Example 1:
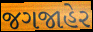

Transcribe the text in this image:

જગજાહેર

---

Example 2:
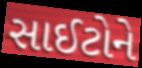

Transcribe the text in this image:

સાઈટોને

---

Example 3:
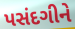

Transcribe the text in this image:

પસંદગીને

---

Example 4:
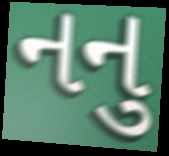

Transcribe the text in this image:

નનુ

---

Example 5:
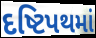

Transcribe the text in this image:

દષ્ટિપથમાં